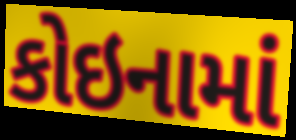
કોઇનામાં